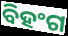
ବିହଂଗ